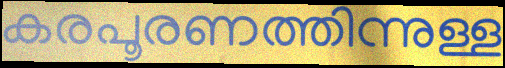
കരപൂരണത്തിന്നുള്ള